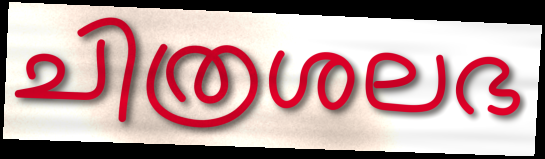
ചിത്രശലഭ